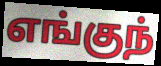
எங்குந்